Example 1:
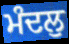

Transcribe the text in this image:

ਮੰਦਲੁ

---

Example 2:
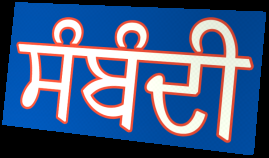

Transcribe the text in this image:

ਸੰਬੰਦੀ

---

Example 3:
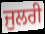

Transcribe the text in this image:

ਜੁਲਰੀ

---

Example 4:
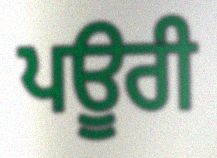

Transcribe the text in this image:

ਪਊਰੀ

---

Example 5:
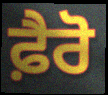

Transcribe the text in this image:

ਫ਼ੈਰੋ